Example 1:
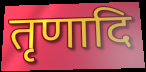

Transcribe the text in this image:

तृणादि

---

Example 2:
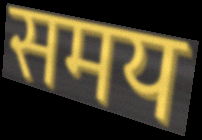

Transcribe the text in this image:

समय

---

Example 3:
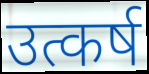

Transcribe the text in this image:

उत्कर्ष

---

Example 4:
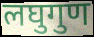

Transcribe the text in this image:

लघुगुण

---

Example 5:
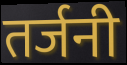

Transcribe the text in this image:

तर्जनी